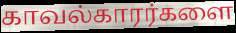
காவல்காரர்களை